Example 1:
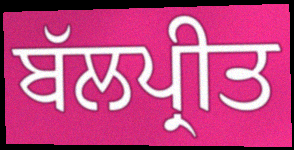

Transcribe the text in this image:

ਬੱਲਪ੍ਰੀਤ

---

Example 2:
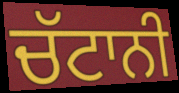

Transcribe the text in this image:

ਚੱਟਾਨੀ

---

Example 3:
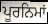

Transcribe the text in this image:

ਪੂਰਨਿਮਾਂ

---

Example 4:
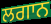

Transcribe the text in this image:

ਲਗਾਨ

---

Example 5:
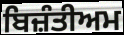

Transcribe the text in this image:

ਬਿਜ਼ੰਤੀਅਮ